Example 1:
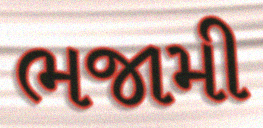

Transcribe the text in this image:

ભજામી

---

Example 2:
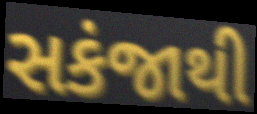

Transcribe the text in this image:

સકંજાથી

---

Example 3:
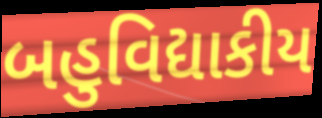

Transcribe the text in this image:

બહુવિદ્યાકીય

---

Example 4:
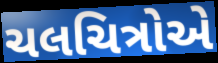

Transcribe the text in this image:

ચલચિત્રોએ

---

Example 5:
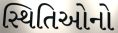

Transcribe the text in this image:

સ્થિતિઓનો